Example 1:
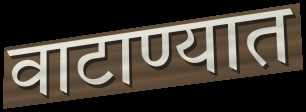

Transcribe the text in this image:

वाटाण्यात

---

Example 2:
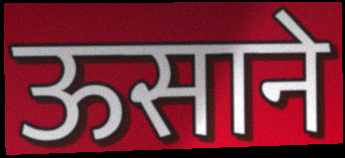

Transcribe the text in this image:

ऊसाने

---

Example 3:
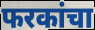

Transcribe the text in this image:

फरकांचा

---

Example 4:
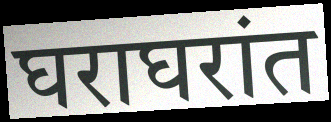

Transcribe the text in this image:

घराघरांत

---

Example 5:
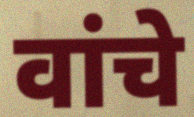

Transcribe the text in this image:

वांचे